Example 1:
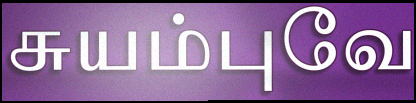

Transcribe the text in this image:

சுயம்புவே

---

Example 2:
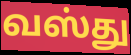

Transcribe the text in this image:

வஸ்து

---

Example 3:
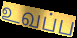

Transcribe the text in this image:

உவப்ப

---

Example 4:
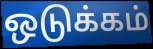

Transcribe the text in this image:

ஒடுக்கம்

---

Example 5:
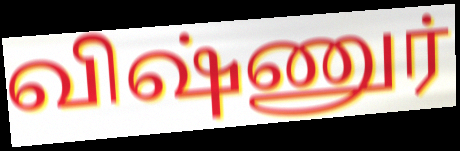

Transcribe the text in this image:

விஷ்ணுர்